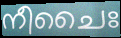
നീചൈഃ